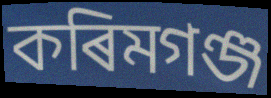
কৰিমগঞ্জ